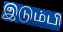
இடும்பி